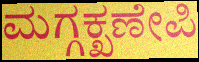
ಮಗ್ಗಕ್ಖಣೇಪಿ